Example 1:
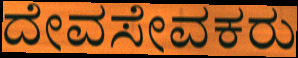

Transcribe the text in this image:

ದೇವಸೇವಕರು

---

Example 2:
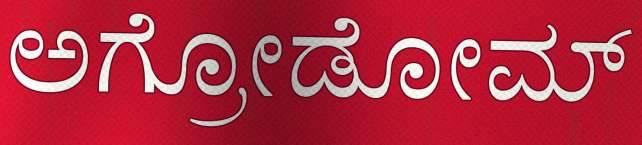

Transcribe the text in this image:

ಅಗ್ರೋಡೋಮ್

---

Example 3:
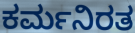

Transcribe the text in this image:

ಕರ್ಮನಿರತ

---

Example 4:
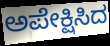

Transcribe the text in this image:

ಅಪೇಕ್ಷಿಸಿದ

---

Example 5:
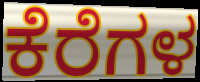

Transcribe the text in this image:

ಕೆರೆಗಳ